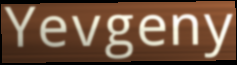
Yevgeny